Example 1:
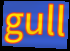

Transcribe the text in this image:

gull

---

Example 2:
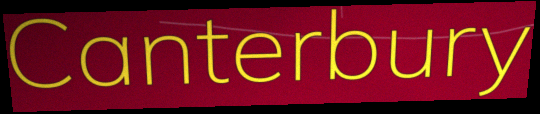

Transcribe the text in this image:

Canterbury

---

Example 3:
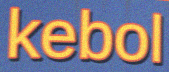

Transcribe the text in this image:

kebol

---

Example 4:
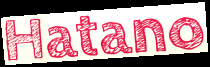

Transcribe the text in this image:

Hatano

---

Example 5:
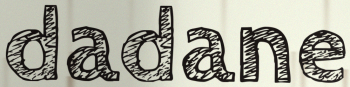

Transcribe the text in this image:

dadane